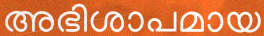
അഭിശാപമായ